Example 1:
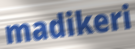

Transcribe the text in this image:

madikeri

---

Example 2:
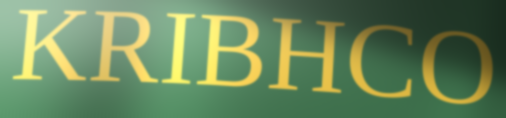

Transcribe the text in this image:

KRIBHCO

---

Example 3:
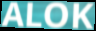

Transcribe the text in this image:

ALOK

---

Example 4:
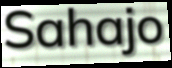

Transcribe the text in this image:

Sahajo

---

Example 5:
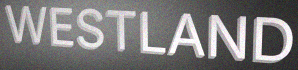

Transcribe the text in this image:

WESTLAND